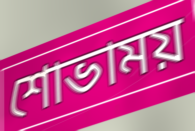
শোভাময়